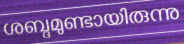
ശബ്ദമുണ്ടായിരുന്നു